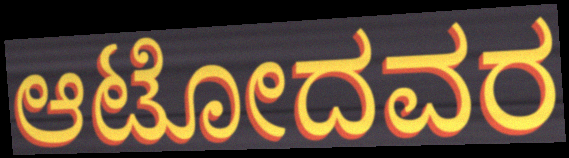
ಆಟೋದವರ